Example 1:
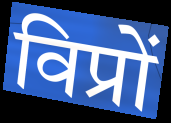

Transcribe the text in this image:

विप्रों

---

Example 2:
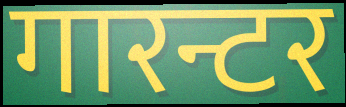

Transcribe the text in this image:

गारन्टर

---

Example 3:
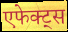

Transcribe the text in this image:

एफेक्ट्स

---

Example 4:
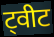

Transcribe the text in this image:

ट्‌वीट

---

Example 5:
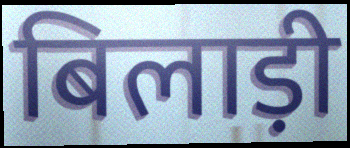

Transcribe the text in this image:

बिलाड़ी